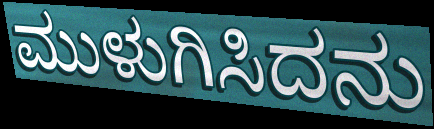
ಮುಳುಗಿಸಿದನು